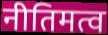
नीतिमत्व